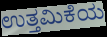
ಉತ್ತಮಿಕೆಯ